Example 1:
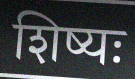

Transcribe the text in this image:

शिष्यः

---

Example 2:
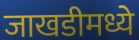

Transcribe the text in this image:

जाखडीमध्ये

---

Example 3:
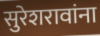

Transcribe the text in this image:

सुरेशरावांना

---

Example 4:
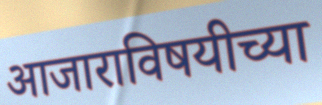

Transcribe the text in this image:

आजाराविषयीच्या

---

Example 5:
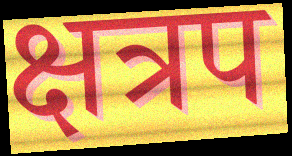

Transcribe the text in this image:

क्षत्रप